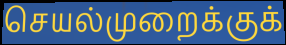
செயல்முறைக்குக்